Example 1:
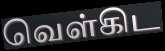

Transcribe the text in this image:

வெள்கிட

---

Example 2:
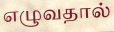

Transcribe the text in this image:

எழுவதால்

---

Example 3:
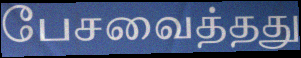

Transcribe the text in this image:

பேசவைத்தது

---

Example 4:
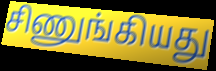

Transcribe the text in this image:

சிணுங்கியது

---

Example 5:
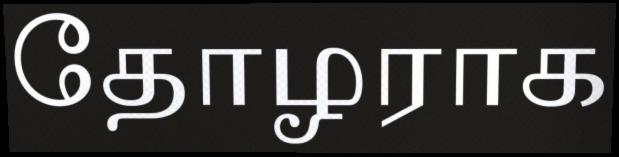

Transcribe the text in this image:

தோழராக